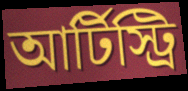
আর্টিস্ট্রি